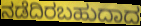
ನಡೆದಿರಬಹುದಾದ